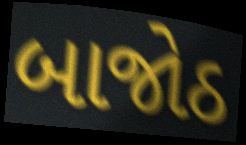
બાજોઠ